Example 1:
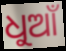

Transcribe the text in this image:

ଧୁଆଁ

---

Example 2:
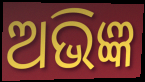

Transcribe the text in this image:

ଅଭିଜ୍ଞ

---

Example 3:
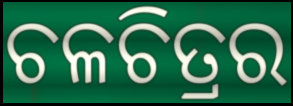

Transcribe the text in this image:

ଚଳଚିତ୍ରର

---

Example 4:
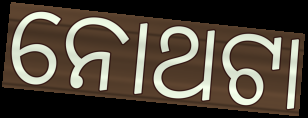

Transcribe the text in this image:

ନୋଥଟା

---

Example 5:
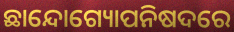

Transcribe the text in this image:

ଛାନ୍ଦୋଗ୍ୟୋପନିଷଦରେ